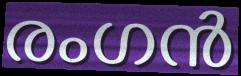
രംഗൻ